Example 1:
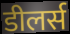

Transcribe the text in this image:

डीलर्स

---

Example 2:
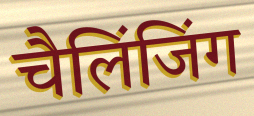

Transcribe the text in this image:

चैलिंजिंग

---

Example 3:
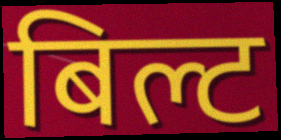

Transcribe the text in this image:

बिल्‍ट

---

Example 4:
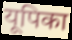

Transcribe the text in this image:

यूपिका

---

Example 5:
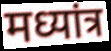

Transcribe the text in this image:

मध्यांत्र